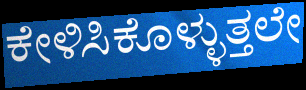
ಕೇಳಿಸಿಕೊಳ್ಳುತ್ತಲೇ